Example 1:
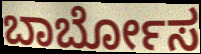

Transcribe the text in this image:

ಬಾರ್ಬೋಸ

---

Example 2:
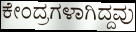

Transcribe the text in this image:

ಕೇಂದ್ರಗಳಾಗಿದ್ದವು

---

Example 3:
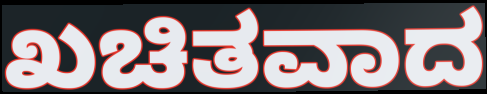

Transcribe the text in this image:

ಖಚಿತವಾದ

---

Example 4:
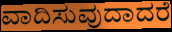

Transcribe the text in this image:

ವಾದಿಸುವುದಾದರೆ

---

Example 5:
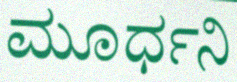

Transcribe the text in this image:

ಮೂರ್ಧನಿ